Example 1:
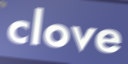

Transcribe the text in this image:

clove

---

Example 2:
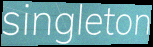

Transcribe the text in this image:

singleton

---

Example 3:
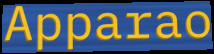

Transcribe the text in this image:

Apparao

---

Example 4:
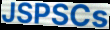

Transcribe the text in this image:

JSPSCs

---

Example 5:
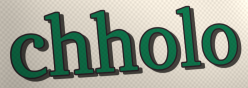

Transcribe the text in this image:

chholo